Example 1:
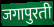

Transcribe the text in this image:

जगापुरती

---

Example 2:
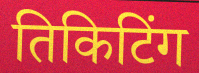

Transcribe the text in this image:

तिकिटिंग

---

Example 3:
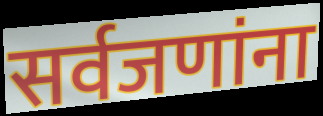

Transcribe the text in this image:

सर्वजणांना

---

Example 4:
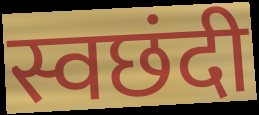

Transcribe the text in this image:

स्वछंदी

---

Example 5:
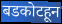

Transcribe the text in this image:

बडकोटहून